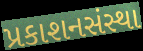
પ્રકાશનસંસ્થા